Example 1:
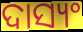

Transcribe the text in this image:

ଦାସ୍ୟଂ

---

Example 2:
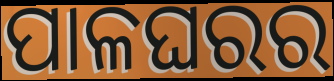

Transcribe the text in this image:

ପାଳଘରର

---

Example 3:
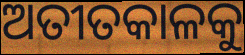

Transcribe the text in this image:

ଅତୀତକାଳକୁ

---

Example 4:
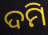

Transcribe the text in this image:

ଦମି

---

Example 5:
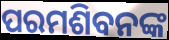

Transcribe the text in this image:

ପରମଶିବନଙ୍କ